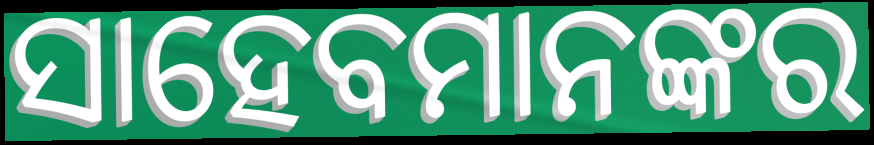
ସାହେବମାନଙ୍କର